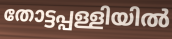
തോട്ടപ്പള്ളിയിൽ